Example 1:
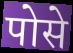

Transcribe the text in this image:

पोसे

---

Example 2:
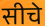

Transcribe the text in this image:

सीचे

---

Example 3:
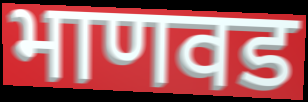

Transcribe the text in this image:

भाणवड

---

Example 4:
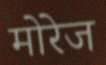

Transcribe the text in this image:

मोरेज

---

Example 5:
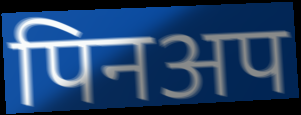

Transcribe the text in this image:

पिनअप